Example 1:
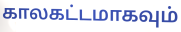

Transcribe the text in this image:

காலகட்டமாகவும்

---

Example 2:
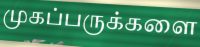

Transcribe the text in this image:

முகப்பருக்களை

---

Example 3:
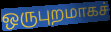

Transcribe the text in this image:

ஒருபுறமாகச்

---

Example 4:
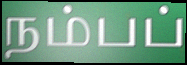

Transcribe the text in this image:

நம்பப்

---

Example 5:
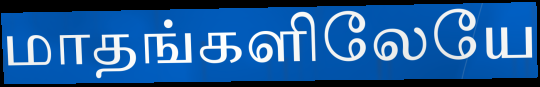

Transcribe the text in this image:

மாதங்களிலேயே